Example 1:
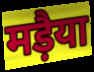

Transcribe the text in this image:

मड़ैया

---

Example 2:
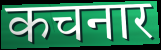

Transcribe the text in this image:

कचनार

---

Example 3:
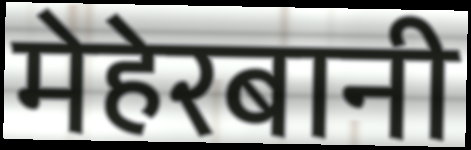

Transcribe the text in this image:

मेहेरबानी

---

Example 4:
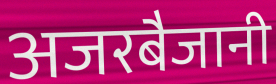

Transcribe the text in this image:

अजरबैजानी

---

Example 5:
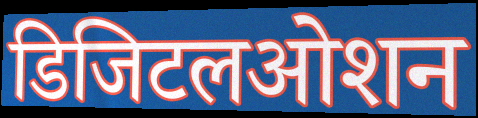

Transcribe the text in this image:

डिजिटलओशन